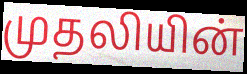
முதலியின்